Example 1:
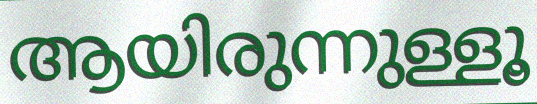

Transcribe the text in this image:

ആയിരുന്നുള്ളൂ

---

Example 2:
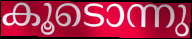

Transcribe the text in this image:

കൂടൊന്നു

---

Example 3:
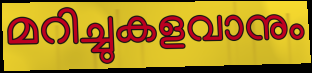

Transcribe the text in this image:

മറിച്ചുകളവാനും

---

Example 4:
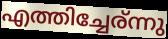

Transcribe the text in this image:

എത്തിച്ചേര്ന്നു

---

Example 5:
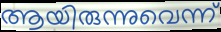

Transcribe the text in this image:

ആയിരുന്നുവെന്ന്